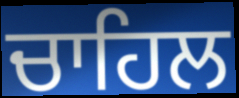
ਚਾਹਿਲ